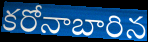
కరోనాబారిన